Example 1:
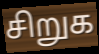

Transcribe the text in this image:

சிறுக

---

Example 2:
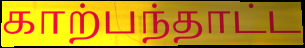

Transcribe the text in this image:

காற்பந்தாட்ட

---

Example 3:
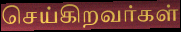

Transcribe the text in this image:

செய்கிறவர்கள்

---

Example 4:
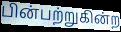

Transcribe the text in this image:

பின்பற்றுகின்ற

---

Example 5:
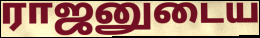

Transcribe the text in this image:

ராஜனுடைய